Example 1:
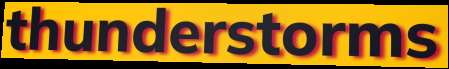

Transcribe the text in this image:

thunderstorms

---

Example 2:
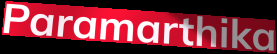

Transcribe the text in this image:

Paramarthika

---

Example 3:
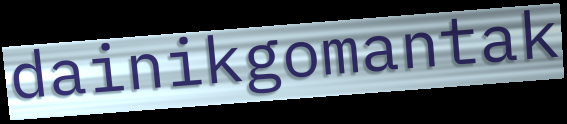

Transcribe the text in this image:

dainikgomantak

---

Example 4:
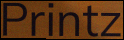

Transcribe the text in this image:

Printz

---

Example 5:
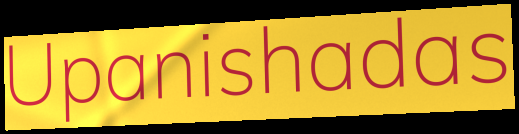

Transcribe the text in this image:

Upanishadas